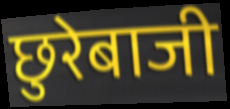
छुरेबाजी